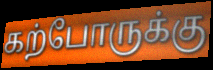
கற்போருக்கு